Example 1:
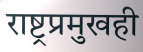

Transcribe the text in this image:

राष्ट्रप्रमुखही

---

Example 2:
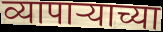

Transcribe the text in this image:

व्यापाऱ्याच्या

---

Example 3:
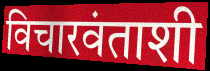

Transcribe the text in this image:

विचारवंताशी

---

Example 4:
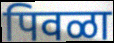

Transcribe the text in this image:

पिवळा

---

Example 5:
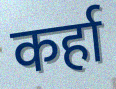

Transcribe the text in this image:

कर्हा